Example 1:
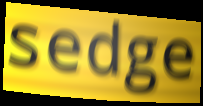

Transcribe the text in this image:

sedge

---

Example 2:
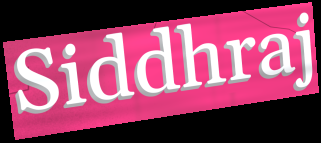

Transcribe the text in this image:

Siddhraj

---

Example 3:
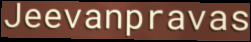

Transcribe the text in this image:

Jeevanpravas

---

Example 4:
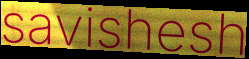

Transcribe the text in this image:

savishesh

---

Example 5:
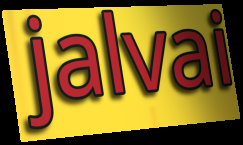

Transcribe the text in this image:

jalvai